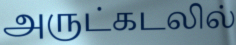
அருட்கடலில்